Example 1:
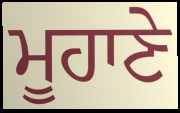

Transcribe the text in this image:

ਮੂਹਾਣੇ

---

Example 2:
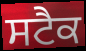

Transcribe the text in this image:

ਸਟੈਕ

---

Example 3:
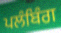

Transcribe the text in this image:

ਪਲੰਬਿੰਗ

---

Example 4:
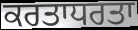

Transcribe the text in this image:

ਕਰਤਾਧਰਤਾ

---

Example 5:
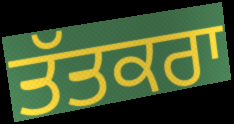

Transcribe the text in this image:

ਤੱਤਕਰਾ